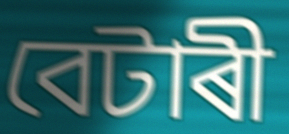
বেটাৰী